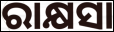
ରାକ୍ଷସା